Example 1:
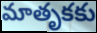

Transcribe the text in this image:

మాతృకకు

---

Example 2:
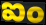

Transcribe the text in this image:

ఐం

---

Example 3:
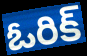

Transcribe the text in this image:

ఓరిక్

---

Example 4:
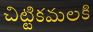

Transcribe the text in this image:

చిట్టికమలకి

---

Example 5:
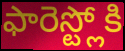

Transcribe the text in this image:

ఫారెస్ట్లోకి